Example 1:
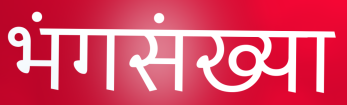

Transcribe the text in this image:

भंगसंख्या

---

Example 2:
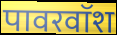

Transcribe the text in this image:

पावरवॉश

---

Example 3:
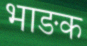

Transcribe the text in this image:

भाङक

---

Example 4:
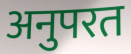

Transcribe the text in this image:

अनुपरत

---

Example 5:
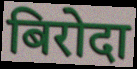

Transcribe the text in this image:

बिरोदा